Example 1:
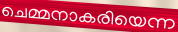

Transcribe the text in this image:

ചെമ്മനാകരിയെന്ന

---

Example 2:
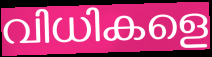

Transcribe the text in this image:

വിധികളെ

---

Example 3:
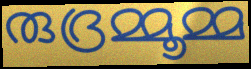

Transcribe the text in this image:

രുദ്രമ്മൂമ്മ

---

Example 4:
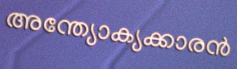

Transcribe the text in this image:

അന്ത്യോക്യക്കാരൻ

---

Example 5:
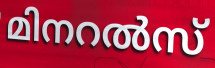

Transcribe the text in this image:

മിനറൽസ്